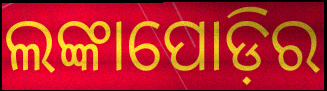
ଲଙ୍କାପୋଡ଼ିର